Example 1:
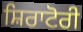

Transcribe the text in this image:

ਸ਼ਿਰਾਟੋਰੀ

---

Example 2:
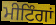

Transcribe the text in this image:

ਮੀਟਿੰਗਾਂ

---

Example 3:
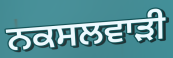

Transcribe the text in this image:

ਨਕਸਲਵਾੜੀ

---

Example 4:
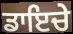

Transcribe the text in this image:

ਡਾਇਚੇ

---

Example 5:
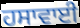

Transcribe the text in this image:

ਹਸਾਵਾਈ